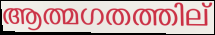
ആത്മഗതത്തില്